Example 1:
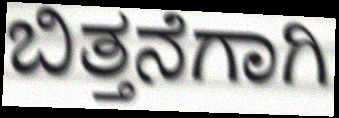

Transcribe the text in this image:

ಬಿತ್ತನೆಗಾಗಿ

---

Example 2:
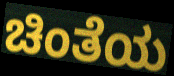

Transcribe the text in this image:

ಚಿಂತೆಯ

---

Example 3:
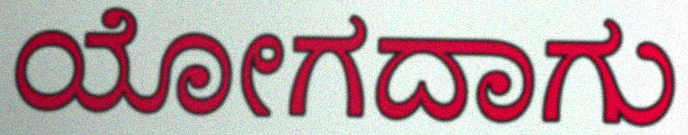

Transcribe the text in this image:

ಯೋಗದಾಗು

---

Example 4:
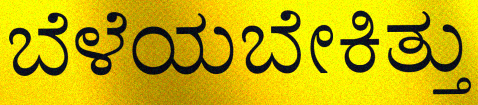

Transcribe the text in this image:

ಬೆಳೆಯಬೇಕಿತ್ತು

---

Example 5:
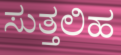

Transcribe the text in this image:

ಸುತ್ತಲಿಹ